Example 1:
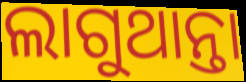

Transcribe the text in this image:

ଲାଗୁଥାନ୍ତା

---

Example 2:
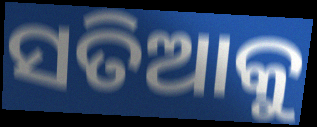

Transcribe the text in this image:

ସତିଆକୁ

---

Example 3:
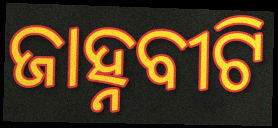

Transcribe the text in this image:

ଜାହ୍ନବୀଟି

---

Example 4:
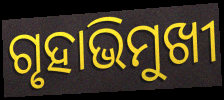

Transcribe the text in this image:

ଗୃହାଭିମୁଖୀ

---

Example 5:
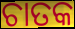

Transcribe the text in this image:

ଚାତକ